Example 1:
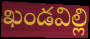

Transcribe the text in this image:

ఖండవిల్లి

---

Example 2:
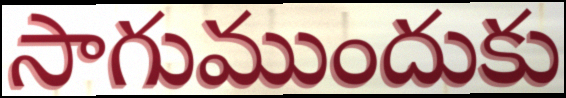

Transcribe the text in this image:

సాగుముందుకు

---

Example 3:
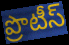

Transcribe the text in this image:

ప్రొటీస్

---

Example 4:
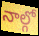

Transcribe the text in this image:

నాల్గో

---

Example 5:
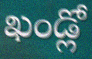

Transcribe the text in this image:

ఖండ్లో